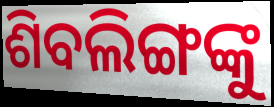
ଶିବଲିଙ୍ଗଙ୍କୁ